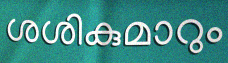
ശശികുമാറും